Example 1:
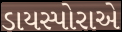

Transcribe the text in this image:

ડાયસ્પોરાએ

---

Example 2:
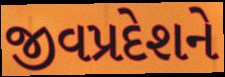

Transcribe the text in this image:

જીવપ્રદેશને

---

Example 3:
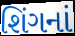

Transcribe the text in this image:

શિંગનાં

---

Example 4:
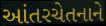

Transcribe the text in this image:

આંતરચેતનાને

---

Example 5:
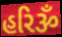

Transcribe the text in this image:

હરિૐ